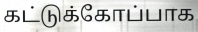
கட்டுக்கோப்பாக